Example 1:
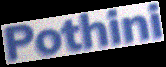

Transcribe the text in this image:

Pothini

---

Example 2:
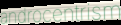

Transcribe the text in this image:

androcentrism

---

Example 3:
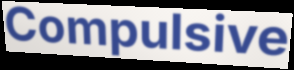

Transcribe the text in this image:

Compulsive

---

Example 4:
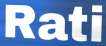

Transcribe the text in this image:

Rati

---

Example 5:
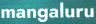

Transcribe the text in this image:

mangaluru